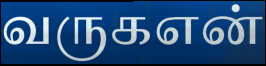
வருகஎன்